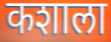
कशाला